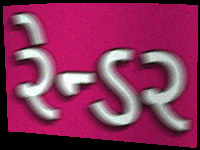
રેન્ડર